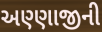
અણ્ણાજીની